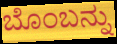
ಬೊಂಬನ್ನು